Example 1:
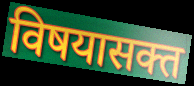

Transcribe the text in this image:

विषयासक्त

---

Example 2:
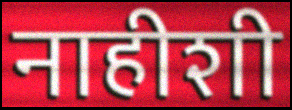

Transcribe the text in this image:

नाहीशी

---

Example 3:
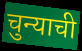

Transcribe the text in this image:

चुन्याची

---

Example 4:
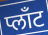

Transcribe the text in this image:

प्लाँट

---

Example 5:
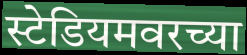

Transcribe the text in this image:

स्टेडियमवरच्या